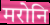
मरोनि